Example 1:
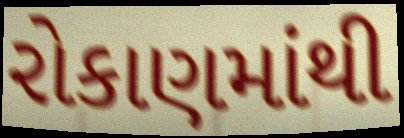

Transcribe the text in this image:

રોકાણમાંથી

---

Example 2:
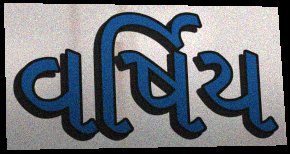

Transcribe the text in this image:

વર્ષિય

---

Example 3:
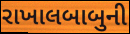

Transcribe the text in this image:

રાખાલબાબુની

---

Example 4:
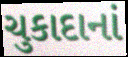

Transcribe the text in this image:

ચુકાદાનાં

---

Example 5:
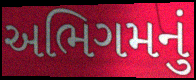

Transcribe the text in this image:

અભિગમનું